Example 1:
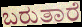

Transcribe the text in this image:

ಬರುತಾರೆ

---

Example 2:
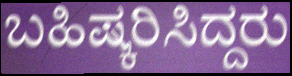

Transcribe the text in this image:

ಬಹಿಷ್ಕರಿಸಿದ್ದರು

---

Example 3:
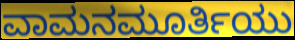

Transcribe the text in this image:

ವಾಮನಮೂರ್ತಿಯು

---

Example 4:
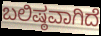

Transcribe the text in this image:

ಬಲಿಷ್ಠವಾಗಿದೆ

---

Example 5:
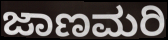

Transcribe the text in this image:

ಜಾಣಮರಿ